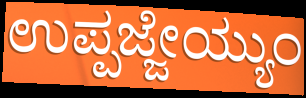
ಉಪ್ಪಜ್ಜೇಯ್ಯುಂ